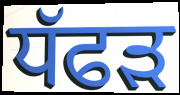
ਧੱਫੜ